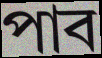
পাব